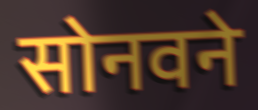
सोनवने